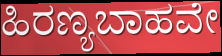
ಹಿರಣ್ಯಬಾಹವೇ